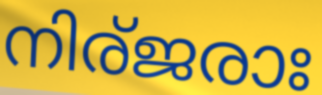
നിര്ജരാഃ